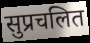
सुप्रचलित